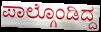
ಪಾಲ್ಗೊಂಡಿದ್ದ